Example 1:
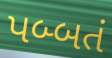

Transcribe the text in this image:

પબ્બતં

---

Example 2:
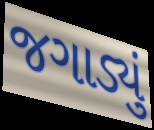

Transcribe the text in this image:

જગાડ્યું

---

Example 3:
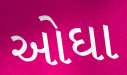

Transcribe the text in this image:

ઓઘા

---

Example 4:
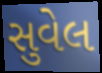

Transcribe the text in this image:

સુવેલ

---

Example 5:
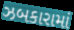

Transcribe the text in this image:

ઝબકારામાં